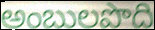
అంబులపొది